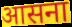
आसना